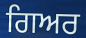
ਗਿਅਰ